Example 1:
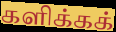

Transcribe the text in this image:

களிக்கக்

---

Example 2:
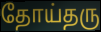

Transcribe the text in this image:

தோய்தரு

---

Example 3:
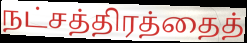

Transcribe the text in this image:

நட்சத்திரத்தைத்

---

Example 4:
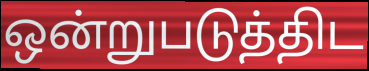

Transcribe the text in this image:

ஒன்றுபடுத்திட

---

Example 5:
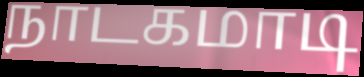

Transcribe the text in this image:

நாடகமாடி